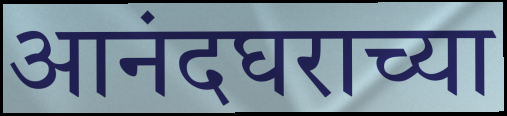
आनंदघराच्या